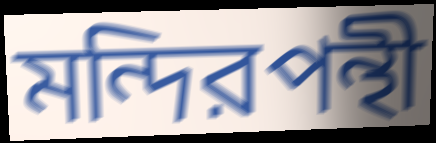
মন্দিরপন্থী